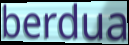
berdua